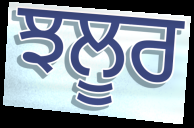
ਝਲੂਰ